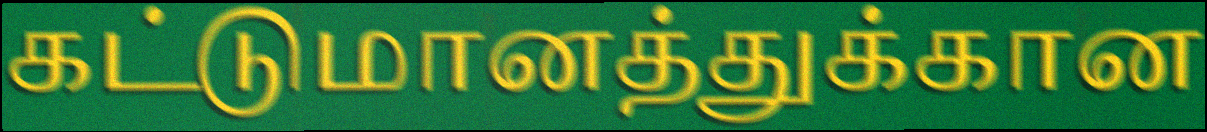
கட்டுமானத்துக்கான